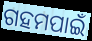
ଗହମପାଇଁ